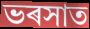
ভৰসাত